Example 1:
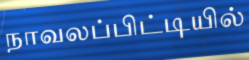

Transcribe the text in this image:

நாவலப்பிட்டியில்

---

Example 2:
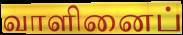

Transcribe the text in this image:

வாளினைப்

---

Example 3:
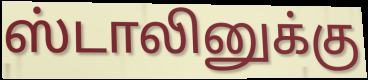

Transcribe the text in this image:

ஸ்டாலினுக்கு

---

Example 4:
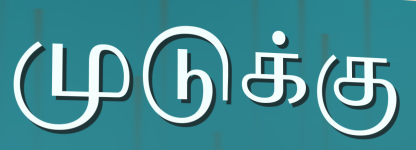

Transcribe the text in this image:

முடுக்கு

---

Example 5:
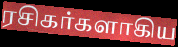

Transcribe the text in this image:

ரசிகர்களாகிய